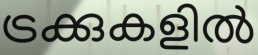
ട്രക്കുകളിൽ